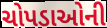
ચોપડાઓની